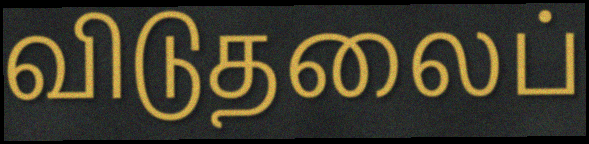
விடுதலைப்